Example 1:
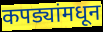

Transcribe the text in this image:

कपड्यांमधून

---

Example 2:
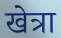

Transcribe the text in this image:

खेत्रा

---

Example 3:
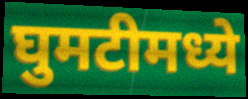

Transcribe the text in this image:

घुमटीमध्ये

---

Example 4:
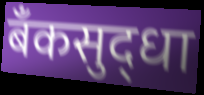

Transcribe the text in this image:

बँकसुद्धा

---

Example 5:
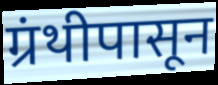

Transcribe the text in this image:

ग्रंथीपासून